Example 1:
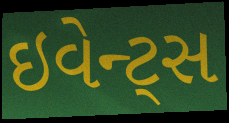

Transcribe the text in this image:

ઇવેન્ટ્સ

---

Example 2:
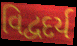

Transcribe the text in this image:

વિદ્વદર્ય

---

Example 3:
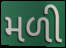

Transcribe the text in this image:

મળી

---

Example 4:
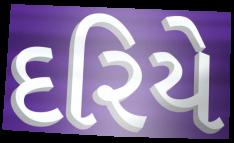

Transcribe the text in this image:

દરિયે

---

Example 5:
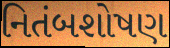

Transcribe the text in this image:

નિતંબશોષણ